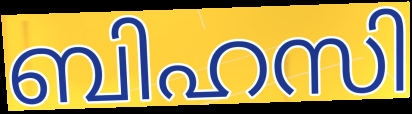
ബിഹസി